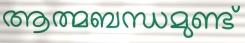
ആത്മബന്ധമുണ്ട്